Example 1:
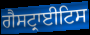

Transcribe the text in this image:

ਗੈਸਟ੍ਰਾਈਟਿਸ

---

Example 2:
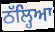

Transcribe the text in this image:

ਠੱਲ੍ਹਿਆ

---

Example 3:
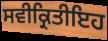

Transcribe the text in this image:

ਸਵੀਕ੍ਰਿਤੀਇਹ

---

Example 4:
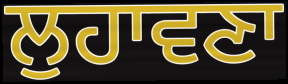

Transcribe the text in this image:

ਲੁਹਾਵਣਾ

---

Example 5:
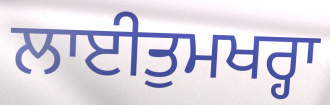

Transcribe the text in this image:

ਲਾਈਤੁਮਖਰ੍ਹਾ